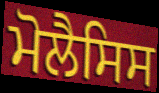
ਮੋਲੈਸਿਸ